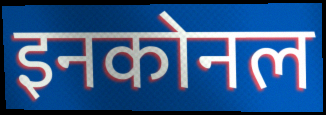
इनकोनल